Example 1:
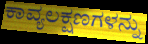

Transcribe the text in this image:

ಕಾವ್ಯಲಕ್ಷಣಗಳನ್ನು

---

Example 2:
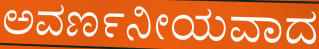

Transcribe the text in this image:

ಅವರ್ಣನೀಯವಾದ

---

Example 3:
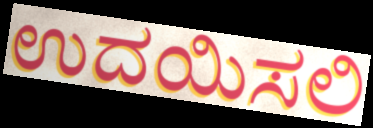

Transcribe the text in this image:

ಉದಯಿಸಲಿ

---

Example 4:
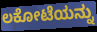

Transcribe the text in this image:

ಲಕೋಟೆಯನ್ನು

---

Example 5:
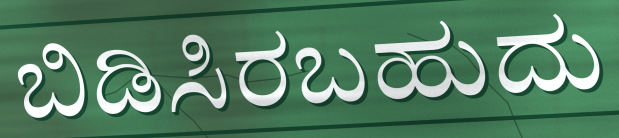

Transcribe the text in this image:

ಬಿಡಿಸಿರಬಹುದು